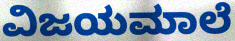
ವಿಜಯಮಾಲೆ